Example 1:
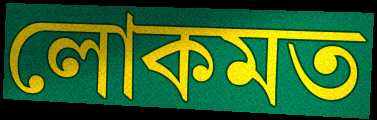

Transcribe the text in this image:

লোকমত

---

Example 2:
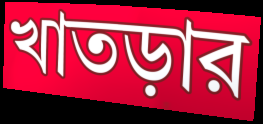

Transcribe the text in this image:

খাতড়ার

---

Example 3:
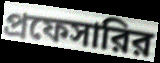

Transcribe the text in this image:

প্রফেসারির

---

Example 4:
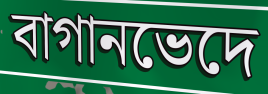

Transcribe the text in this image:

বাগানভেদে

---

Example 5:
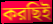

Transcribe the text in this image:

করছিই